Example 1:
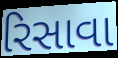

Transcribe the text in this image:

રિસાવા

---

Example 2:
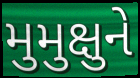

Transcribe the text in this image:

મુમુક્ષુને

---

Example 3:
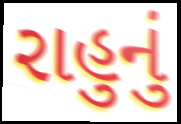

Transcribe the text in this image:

રાહુનું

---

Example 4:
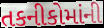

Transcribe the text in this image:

તકનીકોમાંની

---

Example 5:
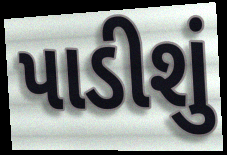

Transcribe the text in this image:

પાડીશું